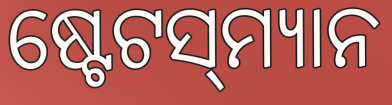
ଷ୍ଟେଟସ୍‌ମ୍ୟାନ